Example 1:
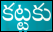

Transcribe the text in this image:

కట్టకు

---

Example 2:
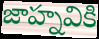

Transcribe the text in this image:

జాహ్నవికి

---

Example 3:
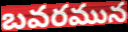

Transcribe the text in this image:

బవరమున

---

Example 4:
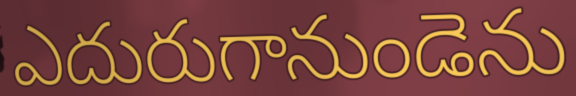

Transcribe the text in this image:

ఎదురుగానుండెను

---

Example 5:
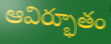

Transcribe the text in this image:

ఆవిర్భూతం